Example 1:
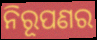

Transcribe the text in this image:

ନିରୂପଣର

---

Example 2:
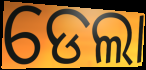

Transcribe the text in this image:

ଡେଲା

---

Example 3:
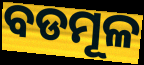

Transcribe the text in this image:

ବଡମୂଳ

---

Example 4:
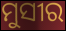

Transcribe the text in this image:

ମୁସୀର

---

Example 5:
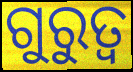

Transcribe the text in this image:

ଗୁରୁତ୍ବ